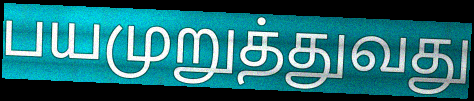
பயமுறுத்துவது